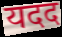
यदद